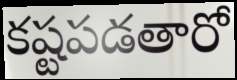
కష్టపడతారో